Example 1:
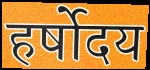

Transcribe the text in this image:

हर्षोदय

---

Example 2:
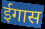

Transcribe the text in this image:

ईगास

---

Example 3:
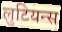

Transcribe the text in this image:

लुटियन्स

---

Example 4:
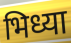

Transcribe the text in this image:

भिध्या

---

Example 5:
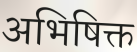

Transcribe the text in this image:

अभिषिक्त